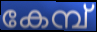
കേമ്പ്